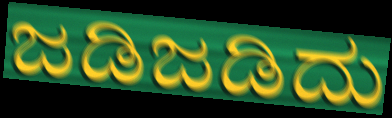
ಜಡಿಜಡಿದು